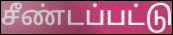
சீண்டப்பட்டு